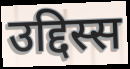
उद्दिस्स